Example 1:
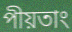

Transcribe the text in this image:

পীয়তাং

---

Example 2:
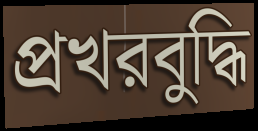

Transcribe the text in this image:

প্রখরবুদ্ধি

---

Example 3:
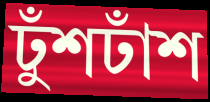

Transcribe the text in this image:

ঢুঁশঢাঁশ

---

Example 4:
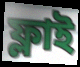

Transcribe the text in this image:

ফ্লাই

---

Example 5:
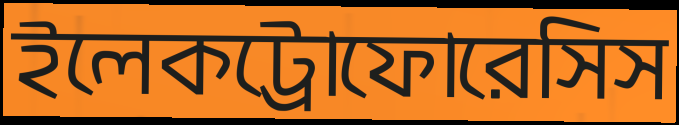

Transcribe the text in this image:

ইলেকট্রোফোরেসিস